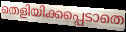
തെളിയിക്കപ്പെടാതെ